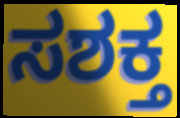
ಸಶಕ್ತ